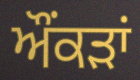
ਔਂਕੜਾਂ